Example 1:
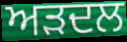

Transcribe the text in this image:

ਅੜਦਲ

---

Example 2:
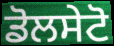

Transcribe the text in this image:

ਡੋਲਸੇਟੋ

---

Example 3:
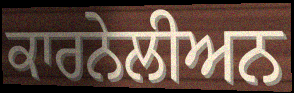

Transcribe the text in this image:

ਕਾਰਨੇਲੀਅਨ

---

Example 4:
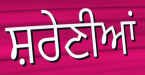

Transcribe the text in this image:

ਸ਼ਰੇਣੀਆਂ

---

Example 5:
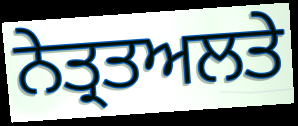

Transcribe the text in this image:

ਨੇਤ੍ਰਤਅਲਤੇ